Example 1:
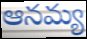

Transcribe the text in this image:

ఆనమ్య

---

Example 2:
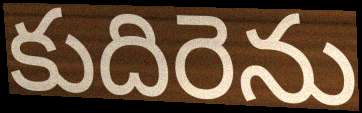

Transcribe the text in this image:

కుదిరెను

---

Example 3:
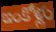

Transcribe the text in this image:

ఇంకోళ్లు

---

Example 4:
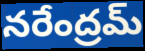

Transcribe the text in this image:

నరేంద్రమ్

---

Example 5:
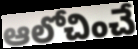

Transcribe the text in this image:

ఆలోచించే